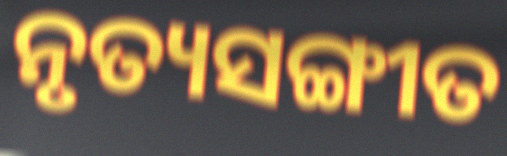
ନୃତ୍ୟସଙ୍ଗୀତ